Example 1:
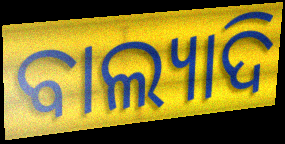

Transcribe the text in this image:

ବାଲ୍ୟାଦି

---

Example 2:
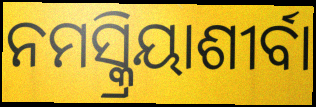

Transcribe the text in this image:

ନମସ୍କ୍ରିୟାଶୀର୍ବା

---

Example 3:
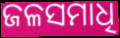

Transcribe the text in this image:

ଜଳସମାଧି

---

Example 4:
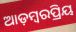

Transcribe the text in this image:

ଆଡ଼ମ୍ବରପ୍ରିୟ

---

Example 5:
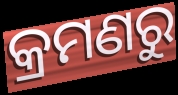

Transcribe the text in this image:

କ୍ରମଣରୁ